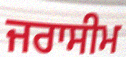
ਜਰਾਸੀਮ